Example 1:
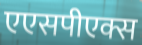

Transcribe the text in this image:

एएसपीएक्स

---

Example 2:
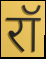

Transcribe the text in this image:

रॉ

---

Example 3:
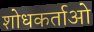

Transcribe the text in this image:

शोधकर्ताओ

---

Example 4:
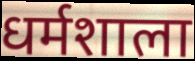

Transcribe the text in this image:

धर्मशाला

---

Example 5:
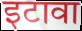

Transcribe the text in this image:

इटावा